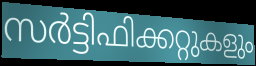
സർട്ടിഫിക്കറ്റുകളും